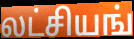
லட்சியங்